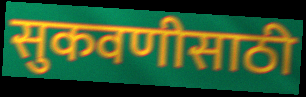
सुकवणीसाठी